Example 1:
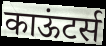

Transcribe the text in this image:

काऊंटर्स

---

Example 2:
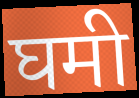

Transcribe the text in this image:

घमी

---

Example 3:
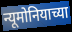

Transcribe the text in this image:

न्यूमोनियाच्या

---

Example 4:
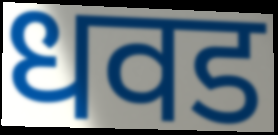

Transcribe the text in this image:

धवड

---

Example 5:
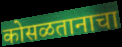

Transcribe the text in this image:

कोसळतानाचा